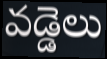
వడ్డెలు